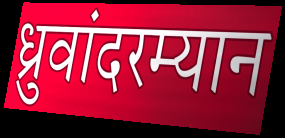
ध्रुवांदरम्यान